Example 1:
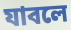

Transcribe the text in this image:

যাবলে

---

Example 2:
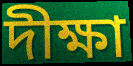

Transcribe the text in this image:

দীক্ষা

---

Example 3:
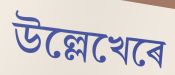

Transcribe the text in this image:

উল্লেখেৰে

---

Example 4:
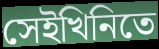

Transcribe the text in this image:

সেইখিনিতে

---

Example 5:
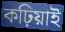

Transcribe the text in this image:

কঢ়িয়াই